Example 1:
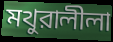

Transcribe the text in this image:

মথুরালীলা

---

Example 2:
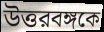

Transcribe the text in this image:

উত্তরবঙ্গকে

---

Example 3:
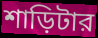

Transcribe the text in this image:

শাড়িটার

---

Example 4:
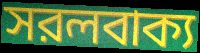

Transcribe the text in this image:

সরলবাক্য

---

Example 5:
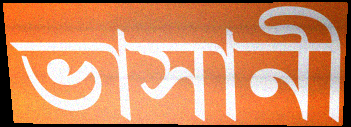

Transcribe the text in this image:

ভাসানী